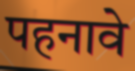
पहनावे